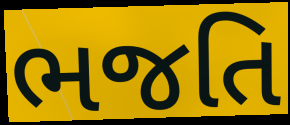
ભજતિ